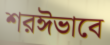
শরঈভাবে